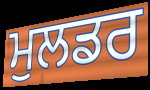
ਮੁਲਡਰ